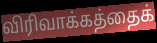
விரிவாக்கத்தைக்